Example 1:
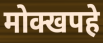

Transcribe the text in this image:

मोक्खपहे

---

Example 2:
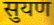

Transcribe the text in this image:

सुयण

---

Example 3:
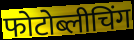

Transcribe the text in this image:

फोटोब्लीचिंग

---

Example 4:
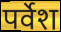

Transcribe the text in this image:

पर्वेश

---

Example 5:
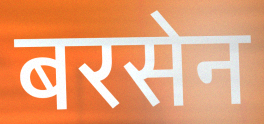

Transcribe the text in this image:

बरसेन